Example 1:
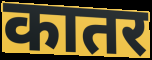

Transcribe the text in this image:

कातर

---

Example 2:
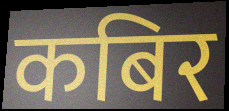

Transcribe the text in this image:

कबिर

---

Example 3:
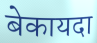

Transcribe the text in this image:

बेकायदा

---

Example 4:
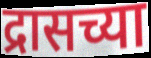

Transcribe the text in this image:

द्रासच्या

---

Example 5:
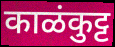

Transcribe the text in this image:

काळंकुट्ट